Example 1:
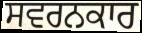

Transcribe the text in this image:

ਸਵਰਨਕਾਰ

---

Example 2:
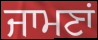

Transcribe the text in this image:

ਜਾਮਣਾਂ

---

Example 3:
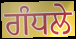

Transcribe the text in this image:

ਗੰਧਲੇ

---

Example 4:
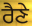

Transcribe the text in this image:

ਰੈਣੇ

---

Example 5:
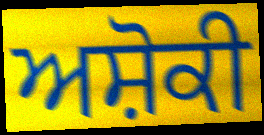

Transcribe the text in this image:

ਅਸ਼ੋਕੀ